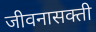
जीवनासक्ती